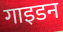
गाइडन